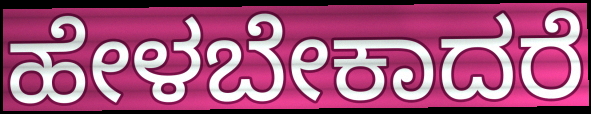
ಹೇಳಬೇಕಾದರೆ